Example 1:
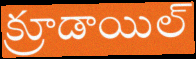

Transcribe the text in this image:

క్రూడాయిల్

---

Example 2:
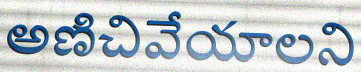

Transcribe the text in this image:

అణిచివేయాలని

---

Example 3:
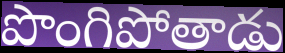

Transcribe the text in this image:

పొంగిపోతాడు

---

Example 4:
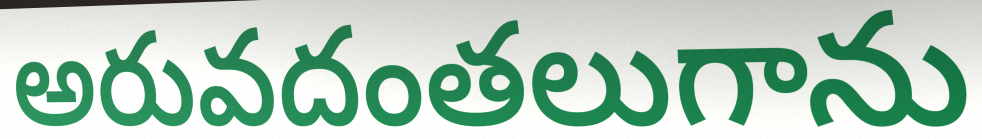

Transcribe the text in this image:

అరువదంతలుగాను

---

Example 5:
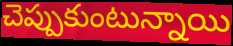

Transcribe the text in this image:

చెప్పుకుంటున్నాయి